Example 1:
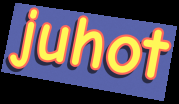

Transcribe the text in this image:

juhot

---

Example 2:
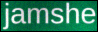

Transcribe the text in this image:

jamshe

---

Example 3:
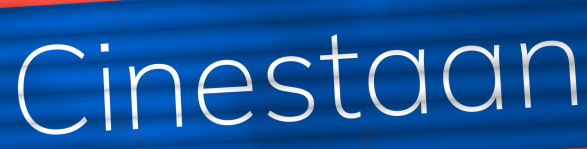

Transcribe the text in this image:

Cinestaan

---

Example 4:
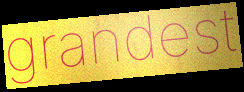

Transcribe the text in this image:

grandest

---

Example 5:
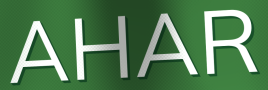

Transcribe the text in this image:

AHAR